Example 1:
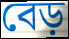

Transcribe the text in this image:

বেড়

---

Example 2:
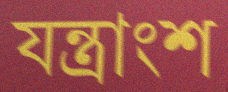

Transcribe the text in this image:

যন্ত্রাংশ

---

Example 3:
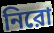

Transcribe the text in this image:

নিরো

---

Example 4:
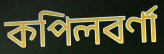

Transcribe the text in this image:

কপিলবর্ণা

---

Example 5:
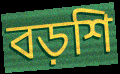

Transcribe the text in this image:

বড়শি